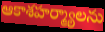
ఆకాశహర్మ్యాలను